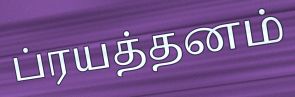
ப்ரயத்தனம்